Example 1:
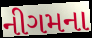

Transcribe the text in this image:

નીગમના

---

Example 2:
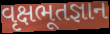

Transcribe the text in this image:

વૃક્ષભૂતજ્ઞાન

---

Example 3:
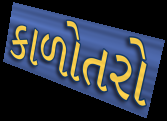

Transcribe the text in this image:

કાળોતરો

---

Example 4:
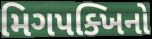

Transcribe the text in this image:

મિગપક્ખિનો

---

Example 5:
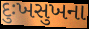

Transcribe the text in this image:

દુઃખસુખના